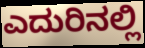
ಎದುರಿನಲ್ಲಿ